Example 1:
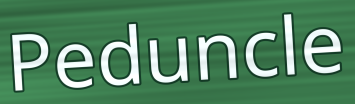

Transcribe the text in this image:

Peduncle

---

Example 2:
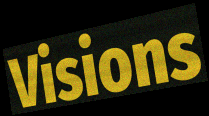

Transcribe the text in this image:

Visions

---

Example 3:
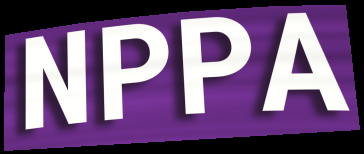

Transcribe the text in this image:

NPPA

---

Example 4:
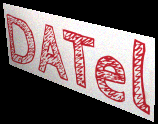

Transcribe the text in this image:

DATel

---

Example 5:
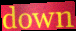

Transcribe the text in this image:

down